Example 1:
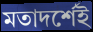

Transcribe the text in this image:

মতাদর্শেই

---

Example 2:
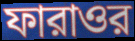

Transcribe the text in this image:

ফারাওর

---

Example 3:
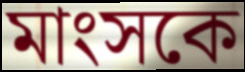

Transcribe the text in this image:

মাংসকে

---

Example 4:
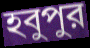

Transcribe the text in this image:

হবুপুর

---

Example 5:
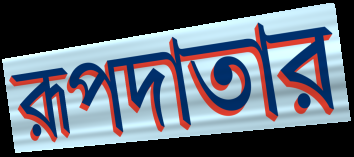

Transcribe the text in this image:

রূপদাতার